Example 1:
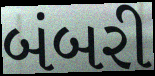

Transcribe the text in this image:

બંબરી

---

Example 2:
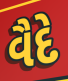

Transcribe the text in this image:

વૈદે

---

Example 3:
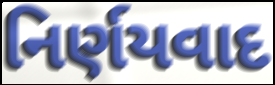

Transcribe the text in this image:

નિર્ણયવાદ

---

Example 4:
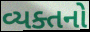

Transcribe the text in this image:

વ્યક્તનો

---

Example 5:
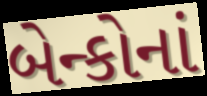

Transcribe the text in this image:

બેન્કોનાં